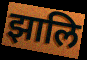
झालि